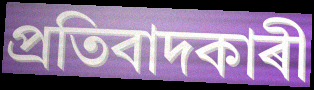
প্ৰতিবাদকাৰী